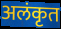
अलंकृत